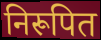
निरूपित